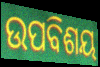
ଉପବିଶୟ